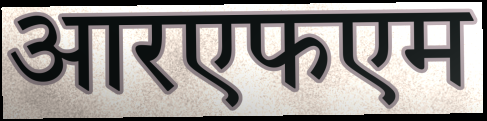
आरएफएम